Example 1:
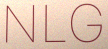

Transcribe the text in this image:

NLG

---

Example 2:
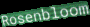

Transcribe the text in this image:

Rosenbloom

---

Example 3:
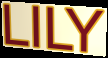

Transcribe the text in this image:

LILY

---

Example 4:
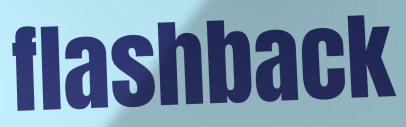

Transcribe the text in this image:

flashback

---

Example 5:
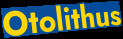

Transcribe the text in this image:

Otolithus